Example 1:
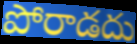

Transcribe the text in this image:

పోరాడదు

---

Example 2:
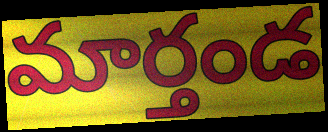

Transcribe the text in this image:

మార్తండ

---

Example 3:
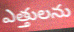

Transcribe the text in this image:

ఎత్తులను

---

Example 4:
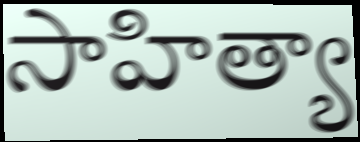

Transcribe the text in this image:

సాహిత్యా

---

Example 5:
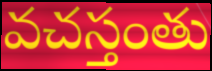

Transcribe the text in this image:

వచస్తంతు